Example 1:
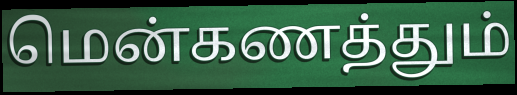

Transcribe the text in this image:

மென்கணத்தும்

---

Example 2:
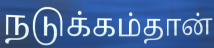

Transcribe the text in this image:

நடுக்கம்தான்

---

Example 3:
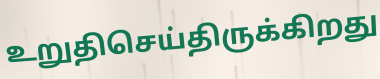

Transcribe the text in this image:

உறுதிசெய்திருக்கிறது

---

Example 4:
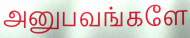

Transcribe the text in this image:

அனுபவங்களே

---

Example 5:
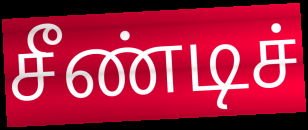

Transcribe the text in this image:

சீண்டிச்